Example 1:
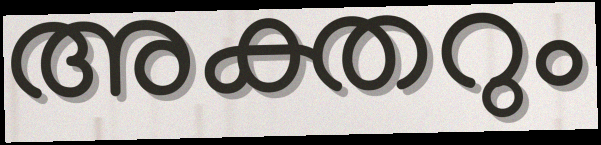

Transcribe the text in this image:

അക്തറും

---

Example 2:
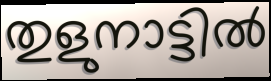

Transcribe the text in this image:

തുളുനാട്ടിൽ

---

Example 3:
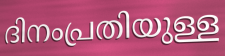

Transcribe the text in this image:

ദിനംപ്രതിയുള്ള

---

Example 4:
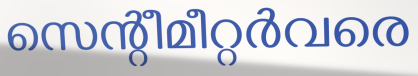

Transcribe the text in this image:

സെന്റീമീറ്റർവരെ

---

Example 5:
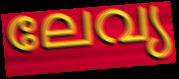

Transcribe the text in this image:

ലേവ്യ